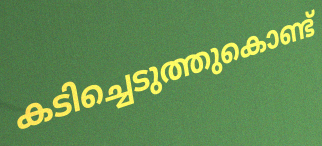
കടിച്ചെടുത്തുകൊണ്ട്